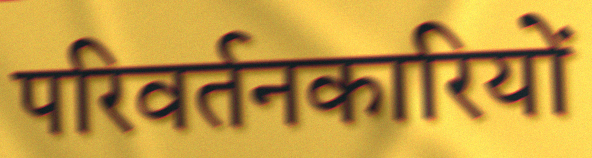
परिवर्तनकारियों